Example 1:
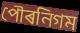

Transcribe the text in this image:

পৌৰনিগম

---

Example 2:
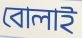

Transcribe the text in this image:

বোলাই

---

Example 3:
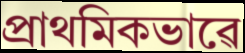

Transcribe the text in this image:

প্ৰাথমিকভাৱে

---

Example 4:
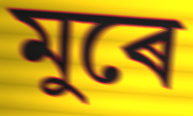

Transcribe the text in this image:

মুৰে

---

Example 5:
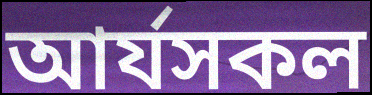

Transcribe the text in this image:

আৰ্যসকল